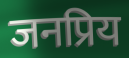
जनप्रिय